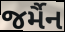
જર્મૈન